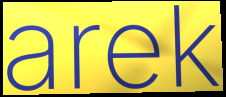
arek